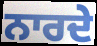
ਨਾਰਦੇ